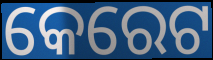
କେରେଟ